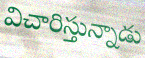
విచారిస్తున్నాడు